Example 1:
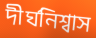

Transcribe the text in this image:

দীর্ঘনিশ্বাস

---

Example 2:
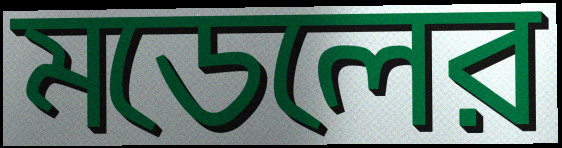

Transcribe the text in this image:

মডেলের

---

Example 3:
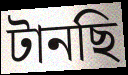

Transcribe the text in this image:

টানছি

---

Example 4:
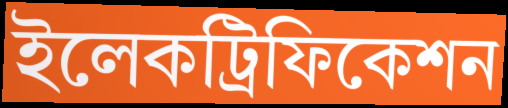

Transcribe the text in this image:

ইলেকট্রিফিকেশন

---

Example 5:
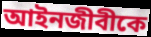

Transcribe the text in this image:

আইনজীবীকে